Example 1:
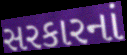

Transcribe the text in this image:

સરકારનાં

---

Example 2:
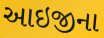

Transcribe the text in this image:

આઇજીના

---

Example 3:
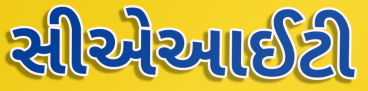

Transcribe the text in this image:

સીએઆઈટી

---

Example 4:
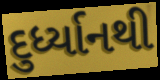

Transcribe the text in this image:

દુર્ધ્યાનથી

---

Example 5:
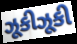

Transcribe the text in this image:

ઝૂકીઝૂકી